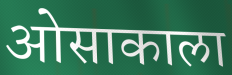
ओसाकाला